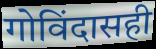
गोविंदासही